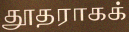
தூதராகக்